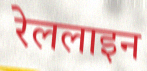
रेललाइन